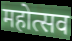
महोत्सव